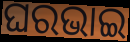
ଘରଭାଇ